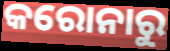
କରୋନାରୁ